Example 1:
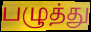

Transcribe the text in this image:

பழுத்து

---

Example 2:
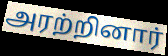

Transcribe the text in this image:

அரற்றினார்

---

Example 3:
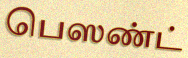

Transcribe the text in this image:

பெஸண்ட்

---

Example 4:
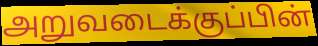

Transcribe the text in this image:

அறுவடைக்குப்பின்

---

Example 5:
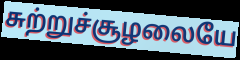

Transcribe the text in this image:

சுற்றுச்சூழலையே